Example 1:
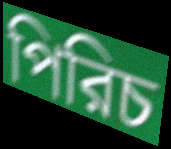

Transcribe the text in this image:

পিরিচ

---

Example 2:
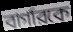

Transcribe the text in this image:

বার্গারকে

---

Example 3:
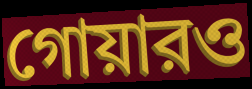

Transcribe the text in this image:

গোয়ারও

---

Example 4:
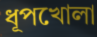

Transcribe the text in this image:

ধূপখোলা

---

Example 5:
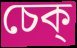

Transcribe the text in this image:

চেক্